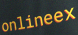
onlineex